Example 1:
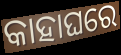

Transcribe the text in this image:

କାହାଘରେ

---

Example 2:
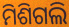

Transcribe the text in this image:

ମିଶିଗଲି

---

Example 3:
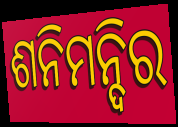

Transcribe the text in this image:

ଶନିମନ୍ଦିର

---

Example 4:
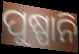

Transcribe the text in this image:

ପୁଷ୍ପାନି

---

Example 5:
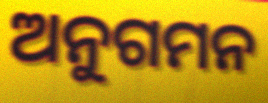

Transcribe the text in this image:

ଅନୁଗମନ